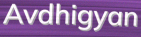
Avdhigyan